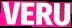
VERU